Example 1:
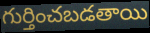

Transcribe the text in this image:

గుర్తించబడతాయి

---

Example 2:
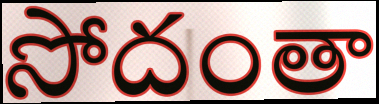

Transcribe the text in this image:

సోదంతా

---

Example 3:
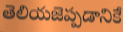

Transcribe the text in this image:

తెలియజెప్పడానికే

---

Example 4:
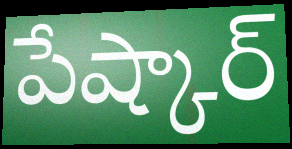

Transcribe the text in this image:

పేష్కార్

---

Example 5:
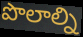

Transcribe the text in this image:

పొలాల్ని